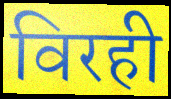
विरही